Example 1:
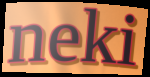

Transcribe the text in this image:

neki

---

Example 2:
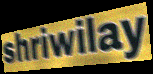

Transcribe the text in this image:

shriwilay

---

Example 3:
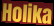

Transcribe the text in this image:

Holika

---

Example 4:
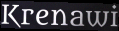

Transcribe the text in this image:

Krenawi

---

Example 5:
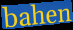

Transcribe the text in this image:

bahen